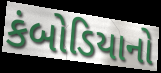
કંબોડિયાનો